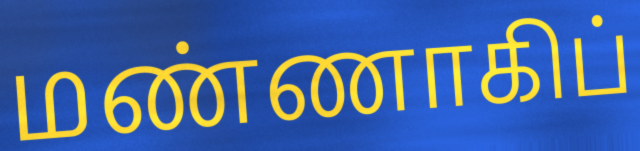
மண்ணாகிப்